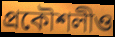
প্রকৌশলীও